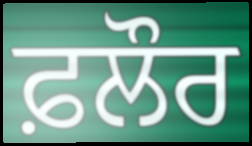
ਫ਼ਲੌਰ